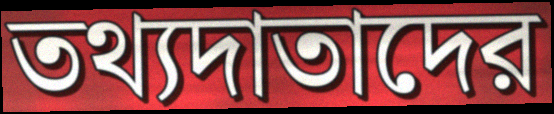
তথ্যদাতাদের